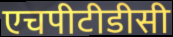
एचपीटीडीसी